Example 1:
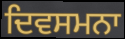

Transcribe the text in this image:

ਦਿਵਸਮਨਾ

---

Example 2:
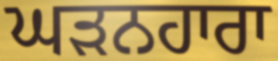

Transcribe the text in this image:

ਘੜਨਹਾਰਾ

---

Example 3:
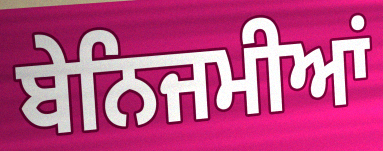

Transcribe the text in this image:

ਬੇਨਿਜਮੀਆਂ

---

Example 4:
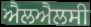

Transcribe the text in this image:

ਐਲਐਲਸੀ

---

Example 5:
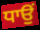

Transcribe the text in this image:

ਧਾਉਂ